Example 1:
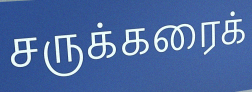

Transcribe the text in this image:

சருக்கரைக்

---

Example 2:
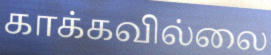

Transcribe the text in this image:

காக்கவில்லை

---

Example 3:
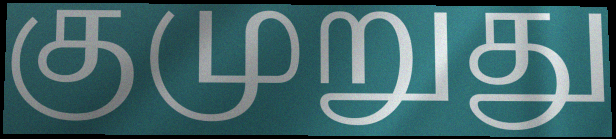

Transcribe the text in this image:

குமுறுது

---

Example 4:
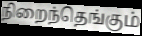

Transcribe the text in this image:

நிறைந்தெங்கும்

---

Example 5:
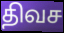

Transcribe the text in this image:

திவச